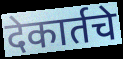
देकार्तचे